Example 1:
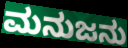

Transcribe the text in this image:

ಮನುಜನು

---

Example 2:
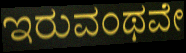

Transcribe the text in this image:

ಇರುವಂಥವೇ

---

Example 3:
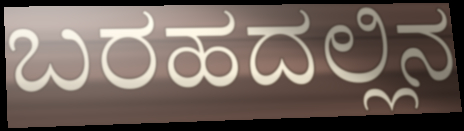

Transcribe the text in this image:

ಬರಹದಲ್ಲಿನ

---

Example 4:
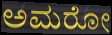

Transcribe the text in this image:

ಅಮರೋ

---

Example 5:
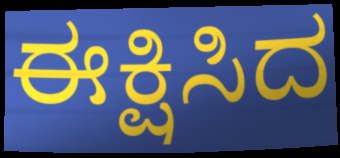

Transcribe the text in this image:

ಈಕ್ಷಿಸಿದ